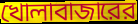
খোলাবাজারের